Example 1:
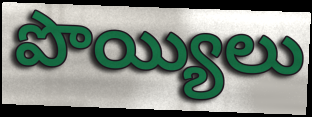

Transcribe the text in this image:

పొయ్యిలు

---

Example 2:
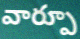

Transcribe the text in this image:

వార్పూ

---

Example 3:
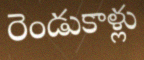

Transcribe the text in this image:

రెండుకాళ్లు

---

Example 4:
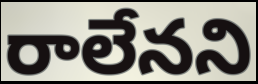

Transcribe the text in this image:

రాలేనని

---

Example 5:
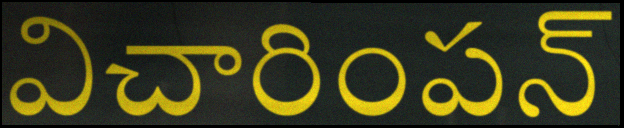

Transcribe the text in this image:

విచారింపన్